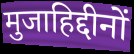
मुजाहिद्दीनों